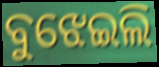
ବୁଝେଇଲି